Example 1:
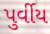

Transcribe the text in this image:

પુર્વીય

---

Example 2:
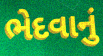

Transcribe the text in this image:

ભેદવાનું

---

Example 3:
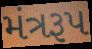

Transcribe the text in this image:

મંત્રરૂપ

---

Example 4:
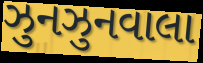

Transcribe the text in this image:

ઝુનઝુનવાલા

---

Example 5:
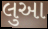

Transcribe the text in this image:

લુઆ